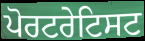
ਪੋਰਟਰੇਟਿਸਟ